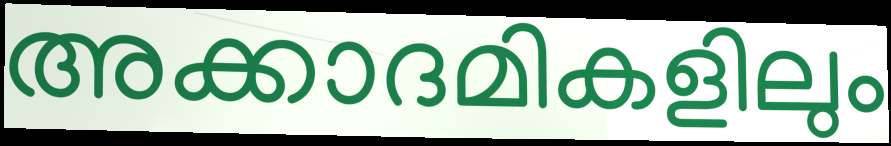
അക്കാദമികളിലും